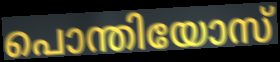
പൊന്തിയോസ്